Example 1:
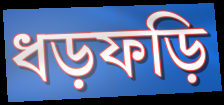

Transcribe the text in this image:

ধড়ফড়ি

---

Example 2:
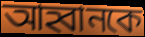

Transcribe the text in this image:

আহ্বানকে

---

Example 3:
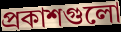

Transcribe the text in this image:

প্রকাশগুলো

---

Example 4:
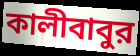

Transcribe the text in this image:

কালীবাবুর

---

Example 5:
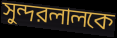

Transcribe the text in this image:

সুন্দরলালকে